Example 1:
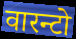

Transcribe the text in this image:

वारन्टो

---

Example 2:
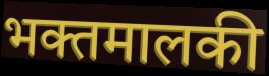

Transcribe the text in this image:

भक्तमालकी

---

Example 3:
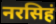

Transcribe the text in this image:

नरसिहं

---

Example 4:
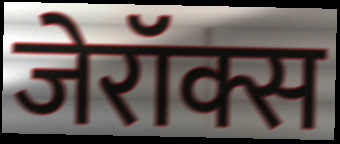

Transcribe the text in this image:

जेरॉक्स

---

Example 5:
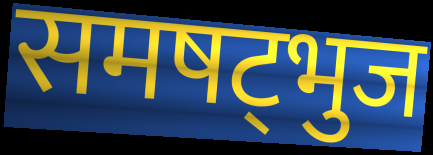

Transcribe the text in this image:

समषट्भुज